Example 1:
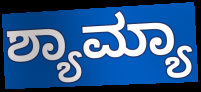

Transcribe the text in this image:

ಶ್ಯಾಮ್ಯಾ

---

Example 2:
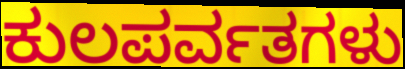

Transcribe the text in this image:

ಕುಲಪರ್ವತಗಳು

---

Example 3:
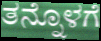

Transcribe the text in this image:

ತನ್ನೊಳಗೆ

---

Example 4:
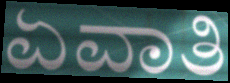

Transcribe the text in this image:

ಏವಾತಿ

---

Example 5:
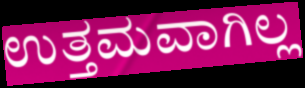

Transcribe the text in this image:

ಉತ್ತಮವಾಗಿಲ್ಲ